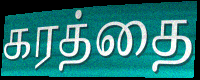
கரத்தை